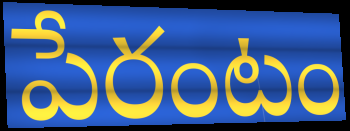
పేరంటం